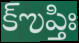
క్ఌప్తిః